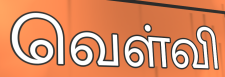
வெள்வி